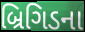
બ્રિગિડના